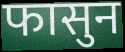
फासुन